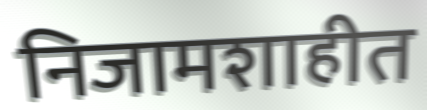
निजामशाहीत